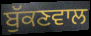
ਬੁੱਕਣਵਾਲ